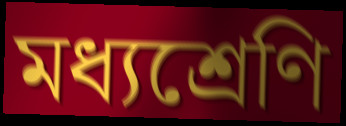
মধ্যশ্রেণি